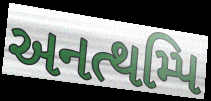
અનત્થમ્પિ